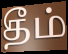
தீம்